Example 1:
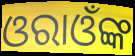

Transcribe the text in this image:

ଓରାଓଁଙ୍କ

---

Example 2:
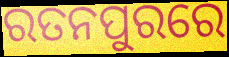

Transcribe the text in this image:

ରତନପୁରରେ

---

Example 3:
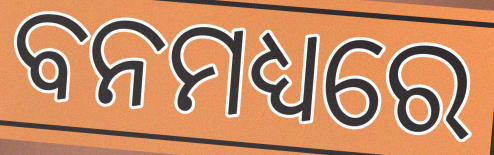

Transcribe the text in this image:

ବନମଧ୍ୟରେ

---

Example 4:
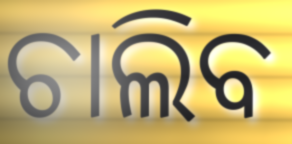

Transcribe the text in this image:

ଚାଲିବ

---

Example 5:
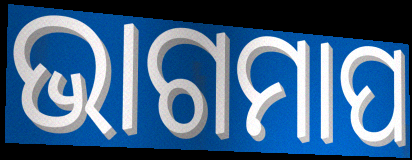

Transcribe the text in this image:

ଭାଗମାପ